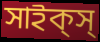
সাইক্‌স্